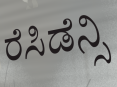
ರೆಸಿಡೆನ್ಸಿ